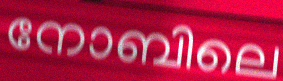
നോബിലെ